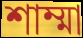
শাম্মা